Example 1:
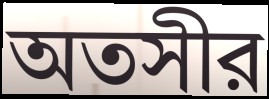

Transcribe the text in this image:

অতসীর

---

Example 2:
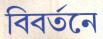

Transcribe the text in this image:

বিবর্তনে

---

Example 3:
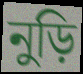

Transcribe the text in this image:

নুড়ি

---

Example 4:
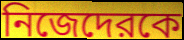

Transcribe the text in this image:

নিজেদেরকে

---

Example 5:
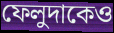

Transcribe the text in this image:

ফেলুদাকেও